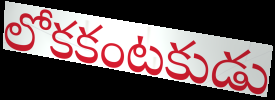
లోకకంటకుడు